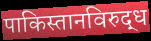
पाकिस्तानविरुद्ध